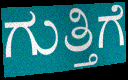
ಗುತ್ತಿಗೆ